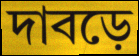
দাবড়ে